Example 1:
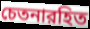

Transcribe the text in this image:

চেতনারহিত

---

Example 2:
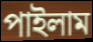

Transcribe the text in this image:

পাইলাম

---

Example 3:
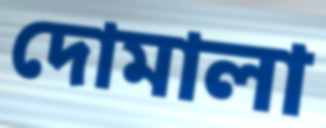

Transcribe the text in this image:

দোমালা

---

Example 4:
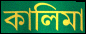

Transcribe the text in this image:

কালিমা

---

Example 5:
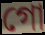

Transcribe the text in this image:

গো